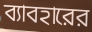
ব্যাবহারের